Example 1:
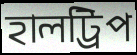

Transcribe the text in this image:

হালট্রিপ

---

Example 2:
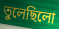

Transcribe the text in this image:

তুলেছিলো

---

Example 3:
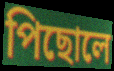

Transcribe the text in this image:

পিছোলে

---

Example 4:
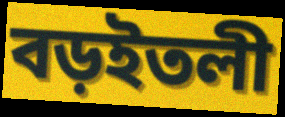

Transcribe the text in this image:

বড়ইতলী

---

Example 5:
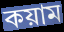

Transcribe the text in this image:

কয়াম